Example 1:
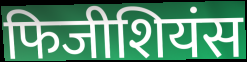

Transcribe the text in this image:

फिजीशियंस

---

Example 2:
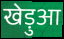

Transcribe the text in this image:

खेड़ुआ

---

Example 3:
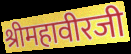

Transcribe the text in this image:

श्रीमहावीरजी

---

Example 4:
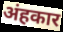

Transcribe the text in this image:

अंहकार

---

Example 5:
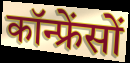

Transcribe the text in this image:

कॉन्फ्रेंसों